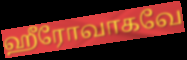
ஹீரோவாகவே